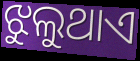
ଝୁଲୁଥାଏ